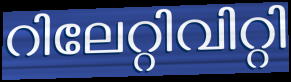
റിലേറ്റിവിറ്റി